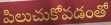
పిలుచుకోవడంతో